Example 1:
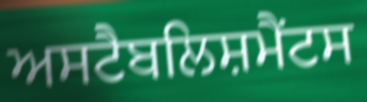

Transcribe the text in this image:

ਅਸਟੈਬਲਿਸ਼ਮੈਂਟਸ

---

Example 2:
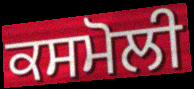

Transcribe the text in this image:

ਕਸਮੋਲੀ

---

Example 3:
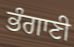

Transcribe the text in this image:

ਭੰਗਾਣੀ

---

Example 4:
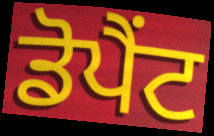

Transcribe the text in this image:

ਡੋਪੈਂਟ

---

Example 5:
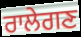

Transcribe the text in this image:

ਰਾਲੇਗਣ